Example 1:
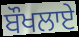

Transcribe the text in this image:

ਬੌਖਲਾਏ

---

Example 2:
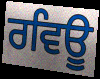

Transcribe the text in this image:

ਰਵਿਊ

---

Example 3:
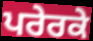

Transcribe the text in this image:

ਪਰੇਰਕੇ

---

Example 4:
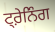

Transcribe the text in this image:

ਟ੍ਰ਼ੇਨਿੰਗ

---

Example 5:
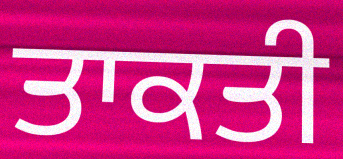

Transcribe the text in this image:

ਤਾਕਤੀ